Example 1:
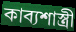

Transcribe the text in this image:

কাব্যশাস্ত্রী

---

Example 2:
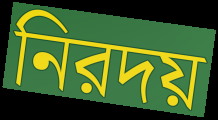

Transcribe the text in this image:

নিরদয়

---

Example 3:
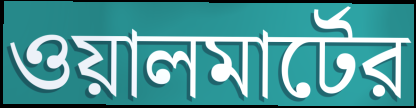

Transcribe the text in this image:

ওয়ালমার্টের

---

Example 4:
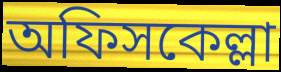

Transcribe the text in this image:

অফিসকেল্লা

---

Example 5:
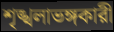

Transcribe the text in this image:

শৃঙ্খলাভঙ্গকারী